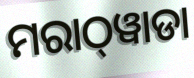
ମରାଠ୍‌ୱାଡା